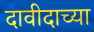
दावीदाच्या